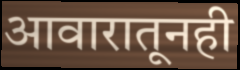
आवारातूनही